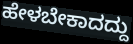
ಹೇಳಬೇಕಾದದ್ದು